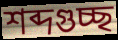
শব্দগুচ্ছ